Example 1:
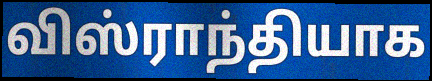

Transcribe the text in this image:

விஸ்ராந்தியாக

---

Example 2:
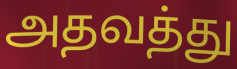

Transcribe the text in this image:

அதவத்து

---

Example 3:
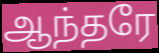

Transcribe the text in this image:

ஆந்தரே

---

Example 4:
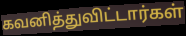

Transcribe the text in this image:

கவனித்துவிட்டார்கள்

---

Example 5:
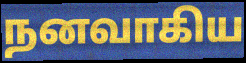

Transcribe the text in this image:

நனவாகிய